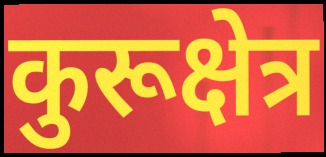
कुरूक्षेत्र